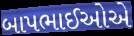
બાપભાઈઓએ